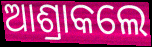
ଆଶ୍ରାକଲେ